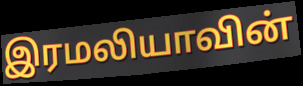
இரமலியாவின்